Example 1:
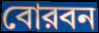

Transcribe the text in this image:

বোরবন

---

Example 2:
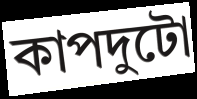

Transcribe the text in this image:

কাপদুটো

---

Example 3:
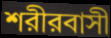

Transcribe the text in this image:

শরীরবাসী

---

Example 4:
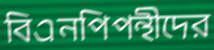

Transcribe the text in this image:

বিএনপিপন্থীদের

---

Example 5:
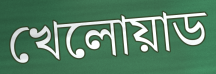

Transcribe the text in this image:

খেলোয়াড